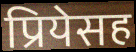
प्रियेसह